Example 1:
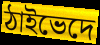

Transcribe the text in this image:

ঠাইভেদে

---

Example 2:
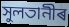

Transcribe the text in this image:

সুলতানীৰ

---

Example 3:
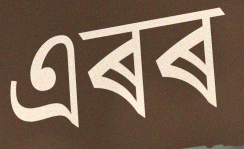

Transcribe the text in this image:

এৰৰ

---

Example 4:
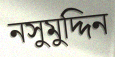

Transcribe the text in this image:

নসুমুদ্দিন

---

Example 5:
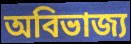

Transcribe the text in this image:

অবিভাজ্য